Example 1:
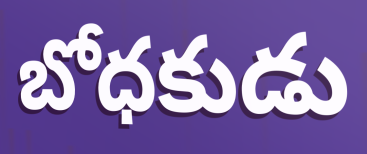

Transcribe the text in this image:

బోధకుడు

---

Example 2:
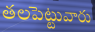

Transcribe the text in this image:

తలపెట్టువారు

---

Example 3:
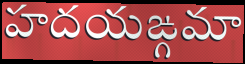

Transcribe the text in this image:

హదయఙ్గమా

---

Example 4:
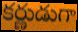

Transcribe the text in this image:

కర్ణుడుగా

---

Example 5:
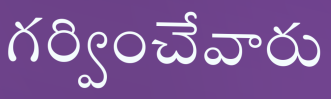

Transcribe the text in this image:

గర్వించేవారు